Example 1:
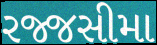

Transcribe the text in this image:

રજ્જસીમા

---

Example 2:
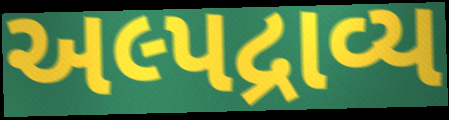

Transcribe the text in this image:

અલ્પદ્રાવ્ય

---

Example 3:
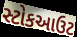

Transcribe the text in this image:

સ્ટોકઆઉટ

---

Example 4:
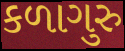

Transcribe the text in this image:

કળાગુરુ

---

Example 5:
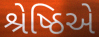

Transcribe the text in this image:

શ્રેષ્ઠિએ